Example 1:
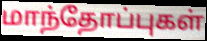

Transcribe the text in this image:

மாந்தோப்புகள்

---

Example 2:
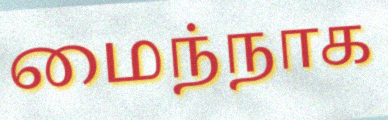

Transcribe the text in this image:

மைந்நாக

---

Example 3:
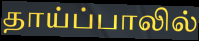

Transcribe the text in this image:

தாய்ப்பாலில்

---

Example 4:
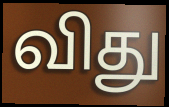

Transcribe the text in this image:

விது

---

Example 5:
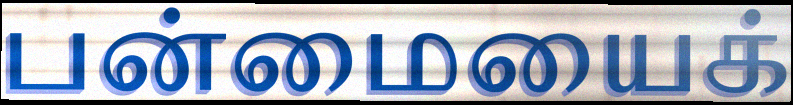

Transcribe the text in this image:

பன்மையைக்